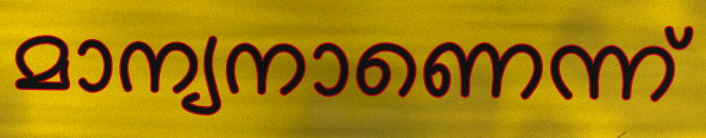
മാന്യനാണെന്ന്